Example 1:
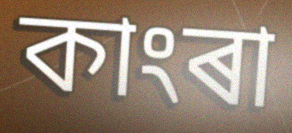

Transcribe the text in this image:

কাংৰা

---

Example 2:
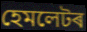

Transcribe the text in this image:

হেমলেটৰ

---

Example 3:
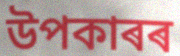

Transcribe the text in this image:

উপকাৰৰ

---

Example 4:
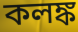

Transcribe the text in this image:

কলঙ্ক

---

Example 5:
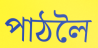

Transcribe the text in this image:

পাঠলৈ